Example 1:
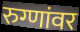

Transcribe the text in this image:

रुग्णांवर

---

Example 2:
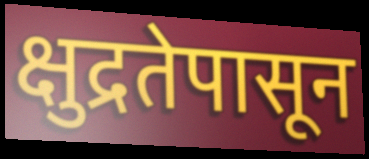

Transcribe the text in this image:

क्षुद्रतेपासून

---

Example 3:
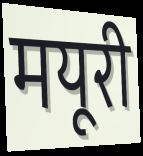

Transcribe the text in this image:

मयूरी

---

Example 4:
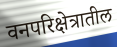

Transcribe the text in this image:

वनपरिक्षेत्रातील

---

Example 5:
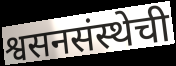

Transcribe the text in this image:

श्वसनसंस्थेची